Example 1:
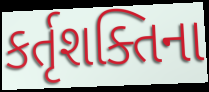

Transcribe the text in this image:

કર્તૃશક્તિના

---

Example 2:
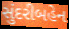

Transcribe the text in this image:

સુંદરીબહેન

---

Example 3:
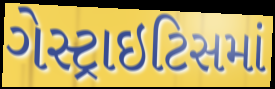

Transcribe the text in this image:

ગેસ્ટ્રાઇટિસમાં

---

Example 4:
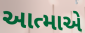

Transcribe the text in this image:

આત્માએ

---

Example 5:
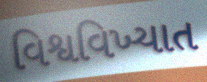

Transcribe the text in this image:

વિશ્વવિખ્યાત